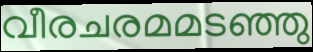
വീരചരമമടഞ്ഞു